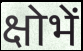
क्षोभें